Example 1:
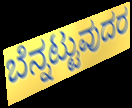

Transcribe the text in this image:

ಬೆನ್ನಟ್ಟುವುದರ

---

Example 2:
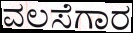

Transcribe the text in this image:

ವಲಸೆಗಾರ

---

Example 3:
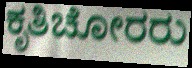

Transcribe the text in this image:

ಕೃತಿಚೋರರು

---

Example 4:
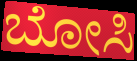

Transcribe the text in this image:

ಬೋಸಿ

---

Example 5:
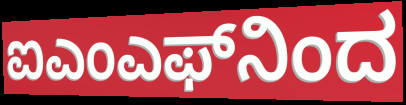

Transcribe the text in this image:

ಐಎಂಎಫ್‌ನಿಂದ